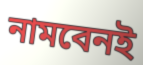
নামবেনই